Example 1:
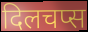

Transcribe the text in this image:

दिलचप्स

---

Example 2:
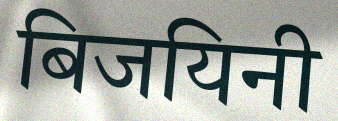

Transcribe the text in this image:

बिजयिनी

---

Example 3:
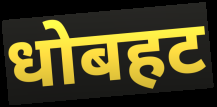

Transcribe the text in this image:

धोबहट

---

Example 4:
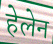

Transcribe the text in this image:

हेलेन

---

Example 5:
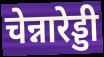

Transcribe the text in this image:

चेन्नारेड्डी